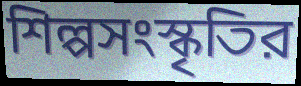
শিল্পসংস্কৃতির